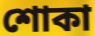
শোকা